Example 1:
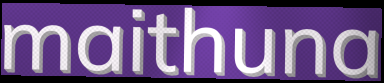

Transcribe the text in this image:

maithuna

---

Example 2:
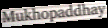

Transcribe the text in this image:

Mukhopaddhay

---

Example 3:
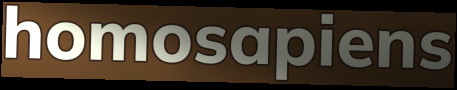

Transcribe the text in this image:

homosapiens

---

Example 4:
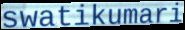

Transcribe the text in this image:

swatikumari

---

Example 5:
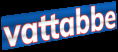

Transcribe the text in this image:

vattabbe